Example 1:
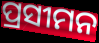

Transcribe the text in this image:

ପ୍ରସୀମନ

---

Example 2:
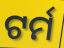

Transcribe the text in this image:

ଟର୍ମ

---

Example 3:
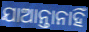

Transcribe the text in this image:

ଯାଆନ୍ତାନାହିଁ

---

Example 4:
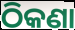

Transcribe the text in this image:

ଠିକଣା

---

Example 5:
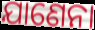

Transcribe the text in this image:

ଯାଣେନା